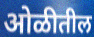
ओळीतील